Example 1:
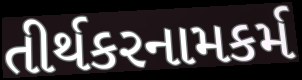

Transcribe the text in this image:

તીર્થકરનામકર્મ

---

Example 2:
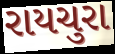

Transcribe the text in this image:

રાયચુરા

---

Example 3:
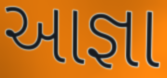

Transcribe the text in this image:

આજ્ઞા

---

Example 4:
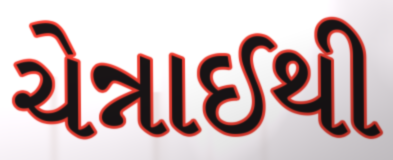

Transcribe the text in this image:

ચેન્નાઈથી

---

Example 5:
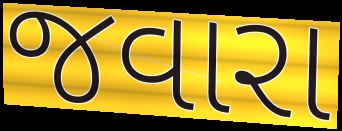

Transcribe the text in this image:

જવારા